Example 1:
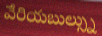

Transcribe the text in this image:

వేరియబుల్స్ను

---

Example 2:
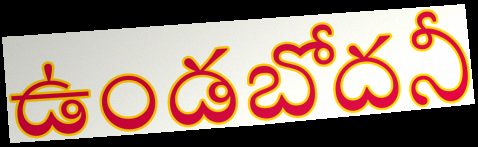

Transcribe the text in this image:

ఉండబోదనీ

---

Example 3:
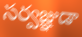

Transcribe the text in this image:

సర్వజ్ఞుడా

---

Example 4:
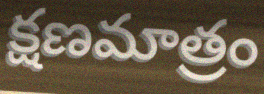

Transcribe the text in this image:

క్షణమాత్రం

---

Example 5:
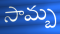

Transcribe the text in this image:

సామ్బ